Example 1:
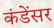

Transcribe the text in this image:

कंडेंसर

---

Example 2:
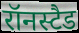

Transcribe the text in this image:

रॉनस्टैड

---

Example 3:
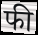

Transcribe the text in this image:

फी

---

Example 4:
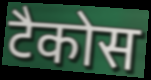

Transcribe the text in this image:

टैकोस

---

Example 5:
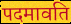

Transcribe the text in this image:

पदमावति